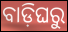
ବାଡ଼ିଘରୁ